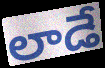
లాడే